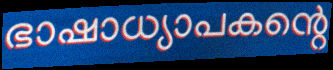
ഭാഷാധ്യാപകന്റെ